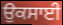
ਉਕਸਾਈ